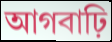
আগবাঢ়ি